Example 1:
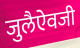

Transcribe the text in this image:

जुलैऐवजी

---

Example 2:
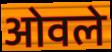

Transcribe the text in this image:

ओवले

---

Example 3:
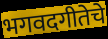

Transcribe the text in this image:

भगवदगीतेचे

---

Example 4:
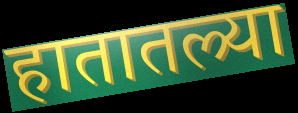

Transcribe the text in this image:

हातातल्या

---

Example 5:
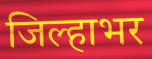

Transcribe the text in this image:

जिल्हाभर